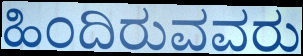
ಹಿಂದಿರುವವರು